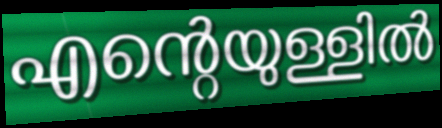
എന്റെയുള്ളിൽ